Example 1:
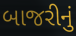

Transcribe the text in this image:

બાજરીનું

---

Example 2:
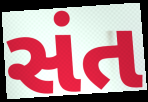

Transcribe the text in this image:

સંત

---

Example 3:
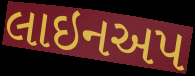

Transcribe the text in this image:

લાઇનઅપ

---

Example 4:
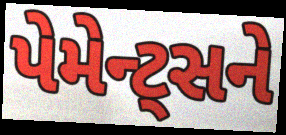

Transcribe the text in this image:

પેમેન્ટ્સને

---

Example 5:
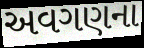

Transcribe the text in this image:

અવગણના